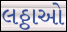
લઠ્ઠાઓ